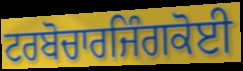
ਟਰਬੋਚਾਰਜਿੰਗਕੋਈ